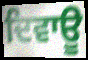
ਦਿਵਾਊ